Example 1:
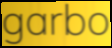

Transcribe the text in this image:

garbo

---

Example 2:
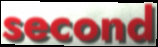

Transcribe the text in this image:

second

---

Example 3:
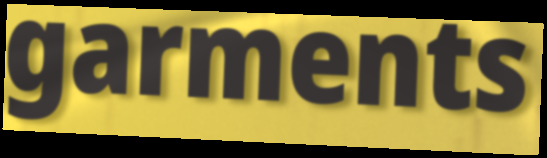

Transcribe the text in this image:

garments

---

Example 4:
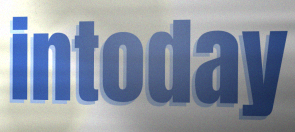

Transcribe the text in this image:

intoday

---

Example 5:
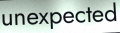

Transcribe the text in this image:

unexpected